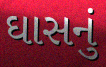
ઘાસનું